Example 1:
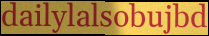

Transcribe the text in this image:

dailylalsobujbd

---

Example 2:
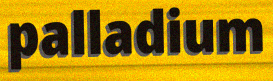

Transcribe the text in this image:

palladium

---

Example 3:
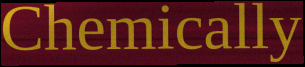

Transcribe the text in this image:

Chemically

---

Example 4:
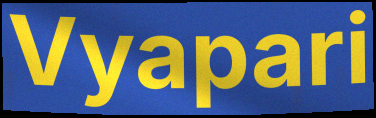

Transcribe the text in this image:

Vyapari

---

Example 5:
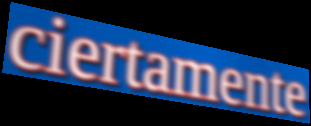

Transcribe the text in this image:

ciertamente